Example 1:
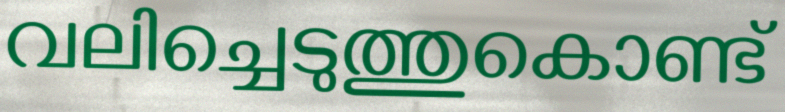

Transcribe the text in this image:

വലിച്ചെടുത്തുകൊണ്ട്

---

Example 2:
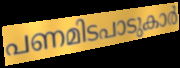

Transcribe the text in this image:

പണമിടപാടുകാർ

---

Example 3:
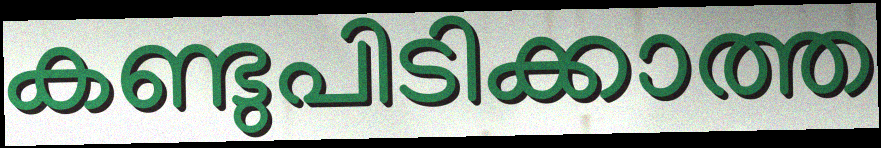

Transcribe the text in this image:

കണ്ടുപിടിക്കാത്ത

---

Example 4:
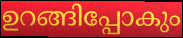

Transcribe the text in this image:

ഉറങ്ങിപ്പോകും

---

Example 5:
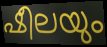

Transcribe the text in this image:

ഷീലയും